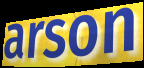
arson